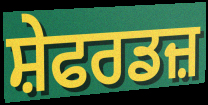
ਸ਼ੇਫਰਡਜ਼